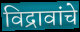
विद्रावांचे